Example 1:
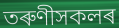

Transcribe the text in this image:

তৰুণীসকলৰ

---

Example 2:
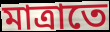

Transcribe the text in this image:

মাত্ৰাতে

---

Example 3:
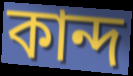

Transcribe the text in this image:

কান্দ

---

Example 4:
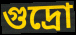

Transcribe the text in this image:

গুদ্ৰো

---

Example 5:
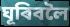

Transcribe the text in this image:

ঘূৰিবলৈ